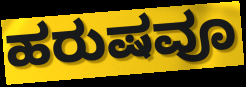
ಹರುಷವೂ